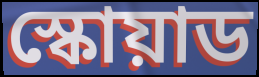
স্কোয়াড